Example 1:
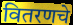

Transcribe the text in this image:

वितरणचे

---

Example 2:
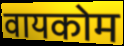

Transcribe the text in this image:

वायकोम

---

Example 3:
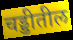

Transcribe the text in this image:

चड्डीतील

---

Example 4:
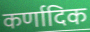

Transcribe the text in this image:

कर्णादिक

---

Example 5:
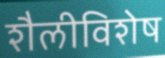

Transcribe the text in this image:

शैलीविशेष